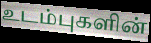
உடம்புகளின்